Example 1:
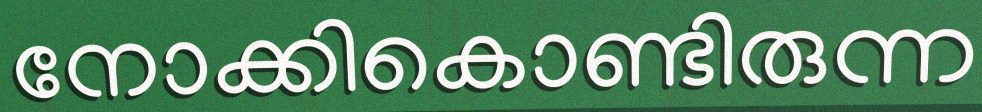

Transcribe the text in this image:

നോക്കികൊണ്ടിരുന്ന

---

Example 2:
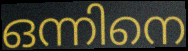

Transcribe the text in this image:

ഒന്നിനെ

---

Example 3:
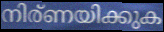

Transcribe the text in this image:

നിര്ണയിക്കുക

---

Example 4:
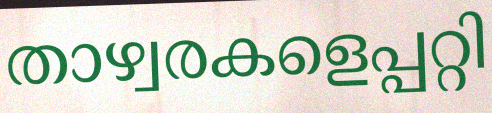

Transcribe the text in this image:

താഴ്വരകളെപ്പറ്റി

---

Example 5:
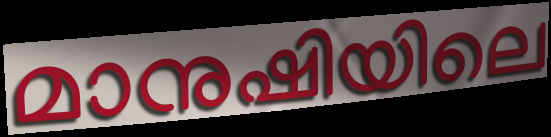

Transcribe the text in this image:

മാനുഷിയിലെ